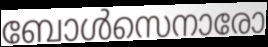
ബോൾസെനാരോ